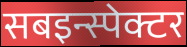
सबइन्स्पेक्टर